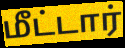
மீட்டார்